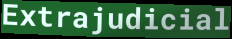
Extrajudicial